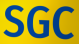
SGC